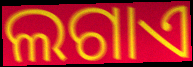
ଲଗାଏ